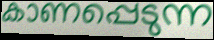
കാണപ്പെടുന്ന